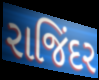
રાજિંદર